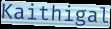
Kaithigal